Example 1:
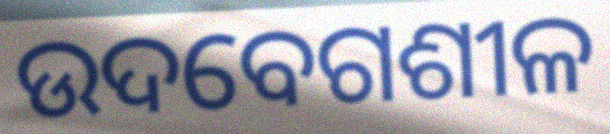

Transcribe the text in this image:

ଉଦବେଗଶୀଳ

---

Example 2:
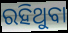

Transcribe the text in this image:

ରହିଥୁବା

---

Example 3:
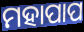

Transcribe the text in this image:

ମହାପାପ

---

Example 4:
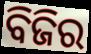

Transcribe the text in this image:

ବିଜିର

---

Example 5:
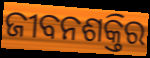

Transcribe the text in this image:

ଜୀବନଶକ୍ତିର